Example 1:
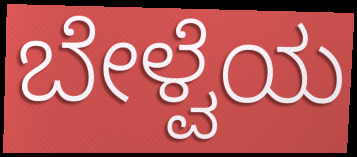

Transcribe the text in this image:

ಬೇಳ್ವೆಯ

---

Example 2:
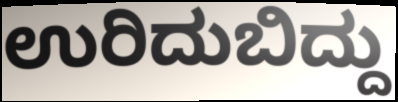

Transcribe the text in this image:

ಉರಿದುಬಿದ್ದು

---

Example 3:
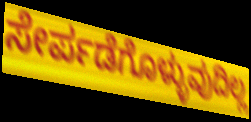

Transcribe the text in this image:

ಸೇರ್ಪಡೆಗೊಳ್ಳುವುದಿಲ್ಲ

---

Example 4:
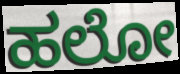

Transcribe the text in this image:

ಹಲೋ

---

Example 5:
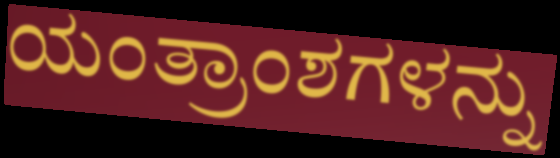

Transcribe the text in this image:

ಯಂತ್ರಾಂಶಗಳನ್ನು